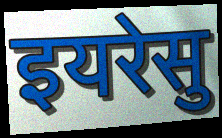
इयरेसु